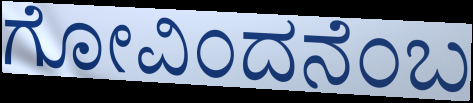
ಗೋವಿಂದನೆಂಬ